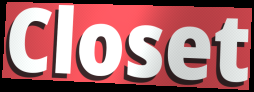
Closet